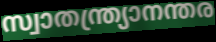
സ്വാതന്ത്ര്യാനന്തര